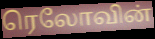
ரெலோவின்